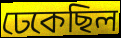
ঢেকেছিল